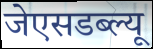
जेएसडब्ल्यू